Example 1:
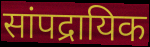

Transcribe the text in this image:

सांपद्रायिक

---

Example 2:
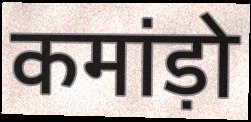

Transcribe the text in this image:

कमांड़ो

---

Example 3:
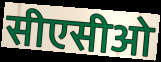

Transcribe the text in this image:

सीएसीओ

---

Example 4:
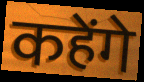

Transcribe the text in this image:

कहेंगे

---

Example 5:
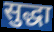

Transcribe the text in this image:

सुद्धा